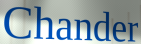
Chander